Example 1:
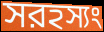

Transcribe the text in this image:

সরহস্যং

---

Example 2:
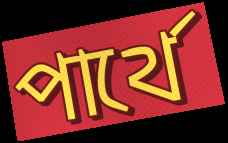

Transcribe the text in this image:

পার্থে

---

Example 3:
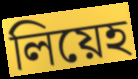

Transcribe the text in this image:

লিয়েহ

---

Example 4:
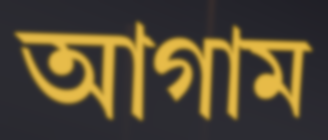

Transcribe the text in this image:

আগাম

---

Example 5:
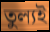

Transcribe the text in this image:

তুল্যই